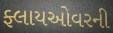
ફ્લાયઓવરની